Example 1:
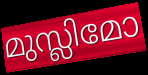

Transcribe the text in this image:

മുസ്ലിമോ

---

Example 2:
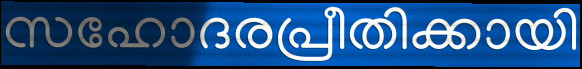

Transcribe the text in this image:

സഹോദരപ്രീതിക്കായി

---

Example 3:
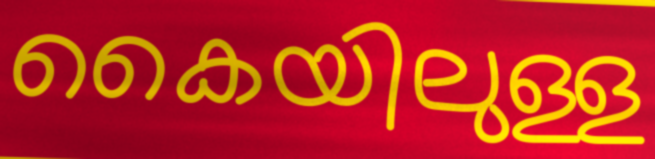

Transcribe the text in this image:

കൈയിലുള്ള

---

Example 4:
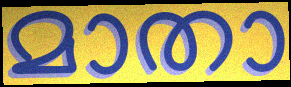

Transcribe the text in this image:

മാതാ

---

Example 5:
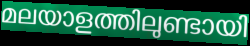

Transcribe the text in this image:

മലയാളത്തിലുണ്ടായി